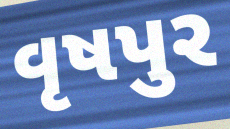
વૃષપુર